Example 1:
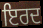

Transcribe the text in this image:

ਇਰਦ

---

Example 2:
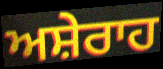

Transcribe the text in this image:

ਅਸ਼ੇਰਾਹ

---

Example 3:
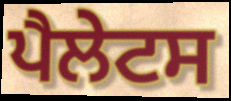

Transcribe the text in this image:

ਪੈਲੇਟਸ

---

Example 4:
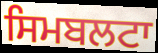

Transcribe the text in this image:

ਸਿਮਬਲਟਾ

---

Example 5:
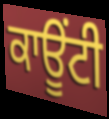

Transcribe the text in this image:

ਕਾਊਂਟੀ